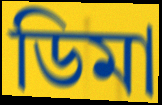
ডিমা